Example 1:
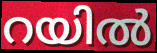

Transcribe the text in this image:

റയിൽ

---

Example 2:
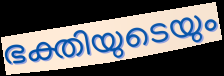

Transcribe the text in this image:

ഭക്തിയുടെയും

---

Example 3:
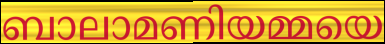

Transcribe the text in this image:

ബാലാമണിയമ്മയെ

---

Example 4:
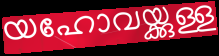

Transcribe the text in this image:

യഹോവയ്ക്കുള്ള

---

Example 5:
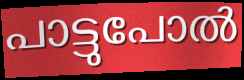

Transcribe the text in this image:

പാട്ടുപോൽ